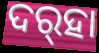
ଦର୍‌ହା